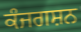
ਕੰਜਗਸ਼ਨ